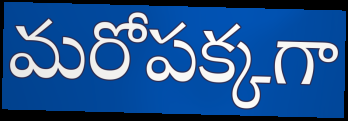
మరోపక్కగా